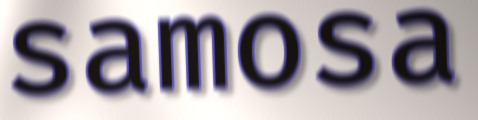
samosa